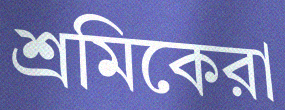
শ্রমিকেরা